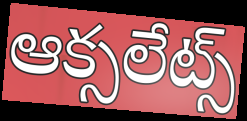
ఆక్సలేట్స్